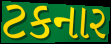
ટકનાર